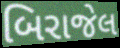
બિરાજેલ